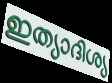
ഇത്യാദിശ്യ